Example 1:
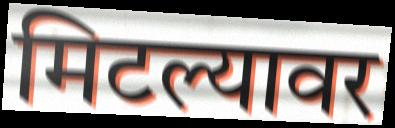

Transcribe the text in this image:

मिटल्यावर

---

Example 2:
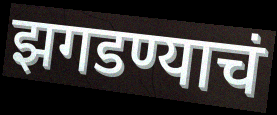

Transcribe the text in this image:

झगडण्याचं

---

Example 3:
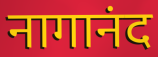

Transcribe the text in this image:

नागानंद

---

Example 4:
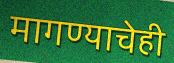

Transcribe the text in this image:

मागण्याचेही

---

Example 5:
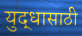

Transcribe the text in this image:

युद्धासाठी